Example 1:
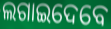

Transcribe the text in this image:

ଲଗାଇଦେବେ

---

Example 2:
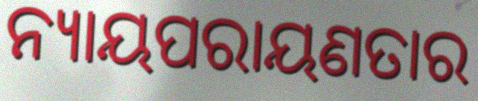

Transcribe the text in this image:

ନ୍ୟାୟପରାୟଣତାର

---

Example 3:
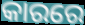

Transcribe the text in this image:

କାରରେ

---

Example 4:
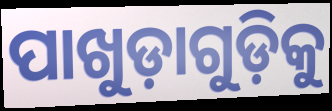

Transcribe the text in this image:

ପାଖୁଡ଼ାଗୁଡ଼ିକୁ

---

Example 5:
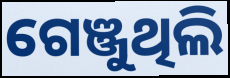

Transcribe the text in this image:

ଗେଞ୍ଜୁଥିଲି